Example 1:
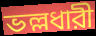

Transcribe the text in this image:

ভল্লধারী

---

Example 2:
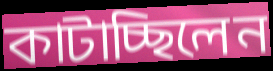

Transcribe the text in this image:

কাটাচ্ছিলেন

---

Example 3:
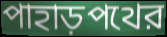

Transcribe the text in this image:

পাহাড়পথের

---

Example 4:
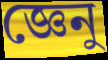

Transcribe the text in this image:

জ্ঞেনু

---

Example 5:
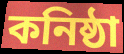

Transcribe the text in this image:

কনিষ্ঠা